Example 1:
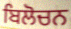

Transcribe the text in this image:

ਬਿਲੋਚਨ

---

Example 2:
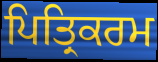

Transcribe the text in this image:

ਪਿਤ੍ਰਿਕਰਮ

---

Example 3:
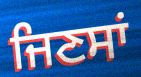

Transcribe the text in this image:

ਜਿਣਸਾਂ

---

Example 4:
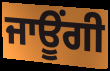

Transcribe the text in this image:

ਜਾਊਂਗੀ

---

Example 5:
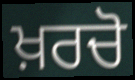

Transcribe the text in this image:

ਖ਼ਰਚੋ